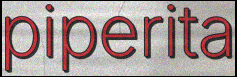
piperita